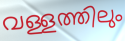
വള്ളത്തിലും